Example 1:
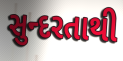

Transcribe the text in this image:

સુન્દરતાથી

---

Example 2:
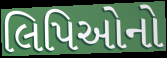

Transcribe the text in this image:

લિપિઓનો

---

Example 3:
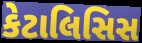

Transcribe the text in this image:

કેટાલિસિસ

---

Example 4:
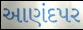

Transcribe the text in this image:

આણંદપર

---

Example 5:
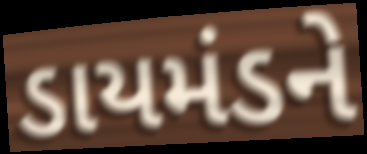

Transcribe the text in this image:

ડાયમંડને